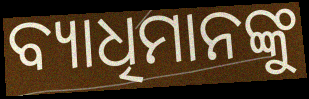
ବ୍ୟାଧିମାନଙ୍କୁ